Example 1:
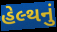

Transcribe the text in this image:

હેલ્થનું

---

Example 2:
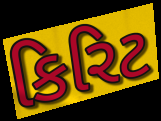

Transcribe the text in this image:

કિરિટ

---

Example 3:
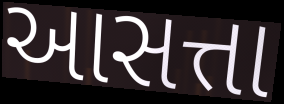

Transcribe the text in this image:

આસત્તા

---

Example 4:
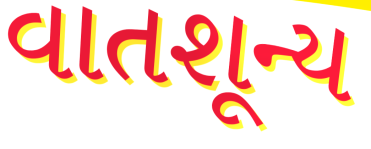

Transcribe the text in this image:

વાતશૂન્ય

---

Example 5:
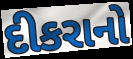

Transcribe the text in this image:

દીકરાનો